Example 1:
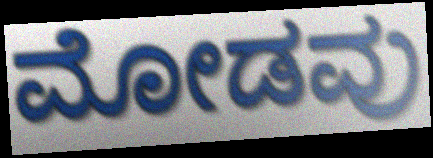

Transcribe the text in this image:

ಮೋಡವು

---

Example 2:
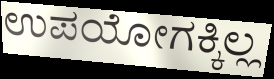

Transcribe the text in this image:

ಉಪಯೋಗಕ್ಕಿಲ್ಲ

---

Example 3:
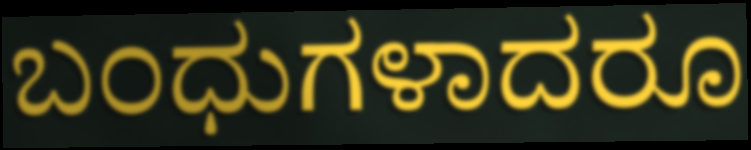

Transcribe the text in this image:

ಬಂಧುಗಳಾದರೂ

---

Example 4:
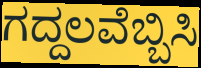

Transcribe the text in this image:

ಗದ್ದಲವೆಬ್ಬಿಸಿ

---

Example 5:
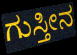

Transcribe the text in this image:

ಗುಸ್ತೀನ